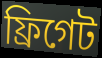
ফ্রিগেট